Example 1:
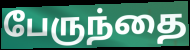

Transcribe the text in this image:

பேருந்தை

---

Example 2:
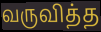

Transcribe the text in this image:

வருவித்த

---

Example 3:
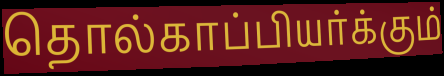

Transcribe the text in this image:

தொல்காப்பியர்க்கும்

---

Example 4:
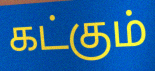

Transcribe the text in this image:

கட்கும்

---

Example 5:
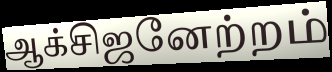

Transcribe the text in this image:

ஆக்சிஜனேற்றம்